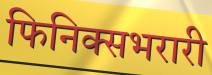
फिनिक्सभरारी